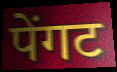
पेंगट